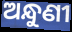
ଅନ୍ଧୁଣୀ